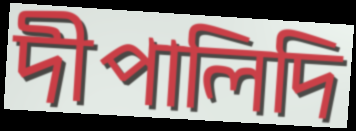
দীপালিদি